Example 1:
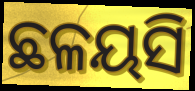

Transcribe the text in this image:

ଛଳୟସି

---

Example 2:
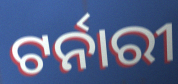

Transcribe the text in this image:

ଟର୍ନାରୀ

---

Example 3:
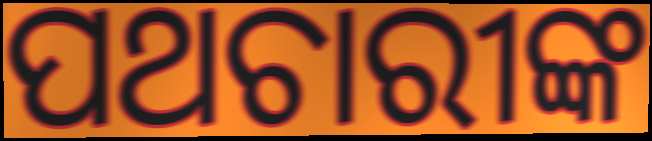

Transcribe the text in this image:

ପଥଚାରୀଙ୍କ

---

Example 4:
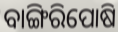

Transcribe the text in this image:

ବାଙ୍ଗିରିପୋଷି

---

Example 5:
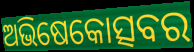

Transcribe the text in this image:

ଅଭିଷେକୋତ୍ସବର